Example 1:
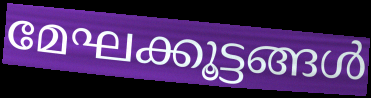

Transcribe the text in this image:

മേഘക്കൂട്ടങ്ങൾ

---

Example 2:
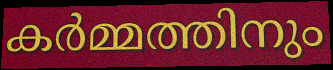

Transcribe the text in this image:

കർമ്മത്തിനും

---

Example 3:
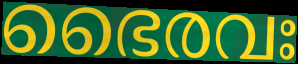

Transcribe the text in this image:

ഭൈരവഃ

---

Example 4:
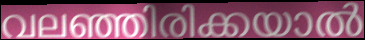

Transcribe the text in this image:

വലഞ്ഞിരിക്കയാൽ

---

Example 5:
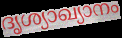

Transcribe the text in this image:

ദൃശ്യാഖ്യാനം